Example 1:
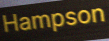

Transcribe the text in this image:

Hampson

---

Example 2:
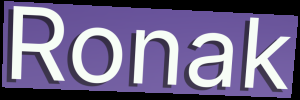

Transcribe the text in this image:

Ronak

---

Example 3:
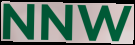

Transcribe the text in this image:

NNW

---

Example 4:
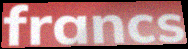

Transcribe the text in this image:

francs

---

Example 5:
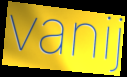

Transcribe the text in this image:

vanij